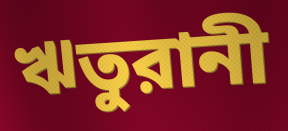
ঋতুরানী